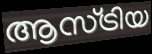
ആസ്ട്രിയ